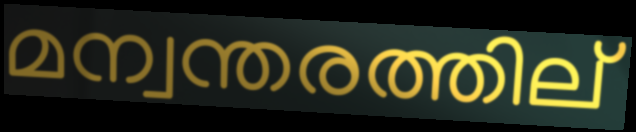
മന്വന്തരത്തില്